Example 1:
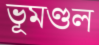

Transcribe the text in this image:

ভূমণ্ডল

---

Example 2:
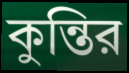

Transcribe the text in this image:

কুন্তির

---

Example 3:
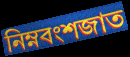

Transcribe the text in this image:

নিম্নবংশজাত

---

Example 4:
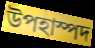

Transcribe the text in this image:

উপহাস্পদ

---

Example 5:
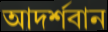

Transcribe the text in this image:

আদর্শবান